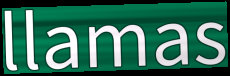
llamas